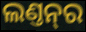
ଲଣ୍ତନ୍‌ର